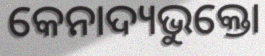
କେନାଦ୍ୟଭୁକ୍ତୋ